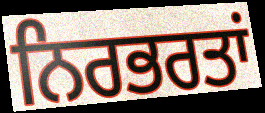
ਨਿਰਭਰਤਾਂ